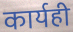
कार्यही